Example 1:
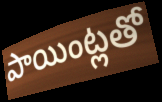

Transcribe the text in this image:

పాయింట్లతో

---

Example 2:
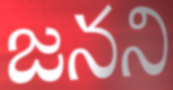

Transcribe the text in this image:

జనని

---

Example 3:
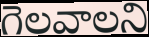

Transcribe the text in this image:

గెలవాలని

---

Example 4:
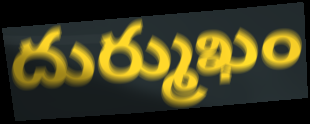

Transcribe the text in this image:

దుర్ముఖం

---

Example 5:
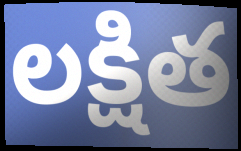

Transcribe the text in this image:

లక్షిత